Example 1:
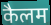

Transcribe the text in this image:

कैलम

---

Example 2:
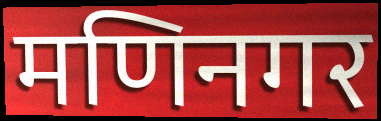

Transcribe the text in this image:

मणिनगर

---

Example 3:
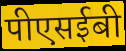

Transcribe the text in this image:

पीएसईबी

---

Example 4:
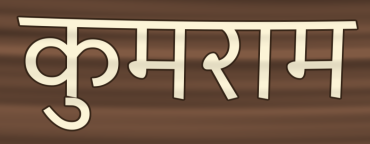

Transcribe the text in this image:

कुमराम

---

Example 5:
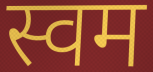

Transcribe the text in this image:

स्वम